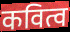
कवित्व